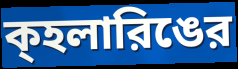
ক্হলারিঙের